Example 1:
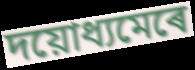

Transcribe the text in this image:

দয়োধ্যমেৰে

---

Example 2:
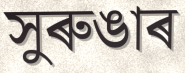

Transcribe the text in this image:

সুৰুঙাৰ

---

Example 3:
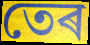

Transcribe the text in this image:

তেৰ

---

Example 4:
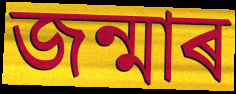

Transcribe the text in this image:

জন্মাৰ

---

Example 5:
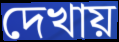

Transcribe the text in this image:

দেখায়